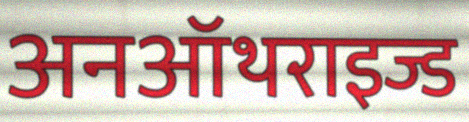
अनऑथराइज्ड